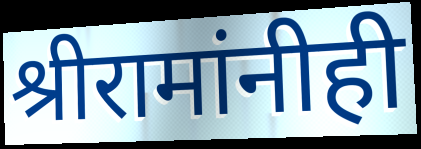
श्रीरामांनीही